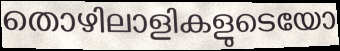
തൊഴിലാളികളുടെയോ